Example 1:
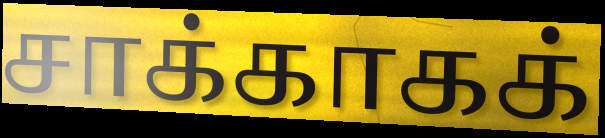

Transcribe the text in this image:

சாக்காகக்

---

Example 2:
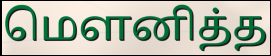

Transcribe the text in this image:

மௌனித்த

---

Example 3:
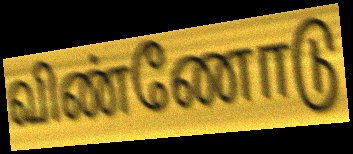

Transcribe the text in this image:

விண்ணோடு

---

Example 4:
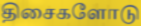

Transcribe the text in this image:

திசைகளோடு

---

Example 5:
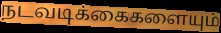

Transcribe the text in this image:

நடவடிக்கைகளையும்